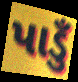
પાડુઁ